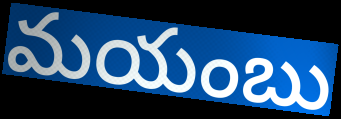
మయంబు